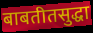
बाबतीतसुद्धा